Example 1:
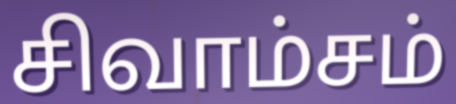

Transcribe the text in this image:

சிவாம்சம்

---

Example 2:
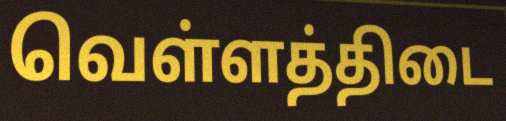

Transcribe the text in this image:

வெள்ளத்திடை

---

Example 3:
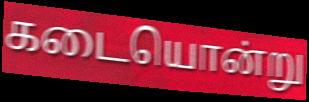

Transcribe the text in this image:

கடையொன்று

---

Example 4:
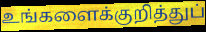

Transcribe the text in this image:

உங்களைக்குறித்துப்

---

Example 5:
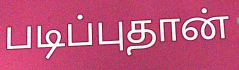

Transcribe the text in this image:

படிப்புதான்